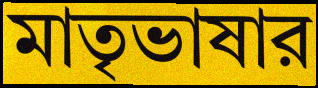
মাতৃভাষার